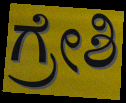
ಗ್ರೇಶಿ